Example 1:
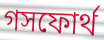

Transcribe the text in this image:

গসফোর্থ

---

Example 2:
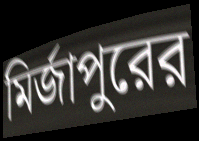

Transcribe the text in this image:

মির্জাপুরের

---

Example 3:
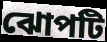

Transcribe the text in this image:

ঝোপটি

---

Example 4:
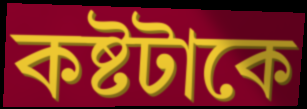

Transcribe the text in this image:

কষ্টটাকে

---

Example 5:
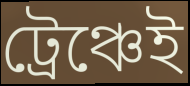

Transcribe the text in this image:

ট্রেঞ্চেই